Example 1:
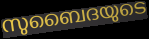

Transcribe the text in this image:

സുബൈദയുടെ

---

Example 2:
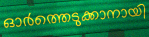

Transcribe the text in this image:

ഓർത്തെടുക്കാനായി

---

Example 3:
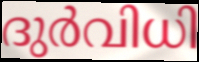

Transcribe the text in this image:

ദുർവിധി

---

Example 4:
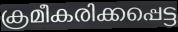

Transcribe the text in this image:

ക്രമീകരിക്കപ്പെട്ട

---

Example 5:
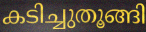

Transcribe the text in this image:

കടിച്ചുതൂങ്ങി